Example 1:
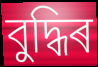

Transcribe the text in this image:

বুদ্ধিৰ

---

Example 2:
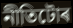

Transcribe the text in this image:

নীতিটোৰ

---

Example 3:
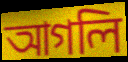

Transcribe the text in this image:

আগলি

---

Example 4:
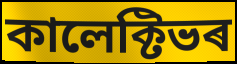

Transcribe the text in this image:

কালেক্টিভৰ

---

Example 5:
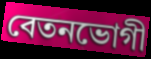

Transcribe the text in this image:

বেতনভোগী